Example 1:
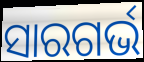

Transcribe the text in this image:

ସାରଗର୍ଭ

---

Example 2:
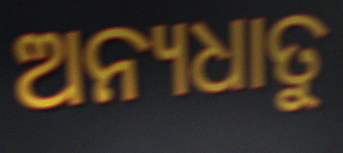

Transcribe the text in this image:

ଅନ୍ୟଧାତୁ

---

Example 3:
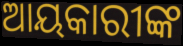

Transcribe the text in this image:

ଆୟକାରୀଙ୍କ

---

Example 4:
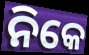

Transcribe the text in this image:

ନିକେ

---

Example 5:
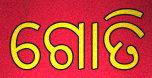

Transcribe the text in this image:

ଗୋତି